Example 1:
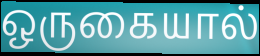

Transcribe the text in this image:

ஒருகையால்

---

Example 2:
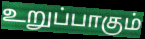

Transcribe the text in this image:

உறுப்பாகும்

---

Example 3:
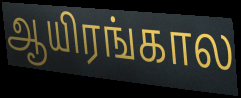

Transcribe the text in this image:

ஆயிரங்கால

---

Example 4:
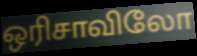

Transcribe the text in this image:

ஒரிசாவிலோ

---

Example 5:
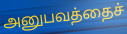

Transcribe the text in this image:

அனுபவத்தைச்